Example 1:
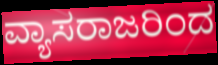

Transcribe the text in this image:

ವ್ಯಾಸರಾಜರಿಂದ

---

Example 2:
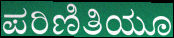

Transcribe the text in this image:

ಪರಿಣಿತಿಯೂ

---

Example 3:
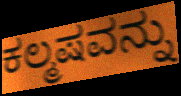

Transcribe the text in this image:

ಕಲ್ಮಷವನ್ನು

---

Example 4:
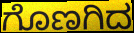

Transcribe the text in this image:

ಗೊಣಗಿದ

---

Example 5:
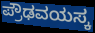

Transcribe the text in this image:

ಪ್ರೌಢವಯಸ್ಕ